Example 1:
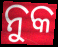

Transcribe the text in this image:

ନୁକ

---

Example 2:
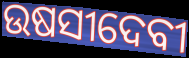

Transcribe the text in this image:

ଉଷସୀଦେବୀ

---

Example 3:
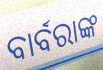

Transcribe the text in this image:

ବାର୍ବରାଙ୍କ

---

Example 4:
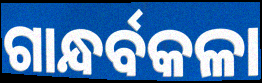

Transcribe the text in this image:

ଗାନ୍ଧର୍ବକଳା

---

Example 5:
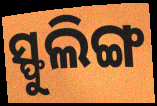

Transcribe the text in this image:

ସ୍ଫୁଲିଙ୍ଗ